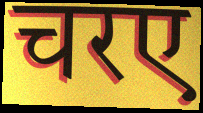
चरए